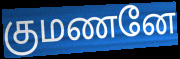
குமணனே